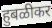
हुबळीकर